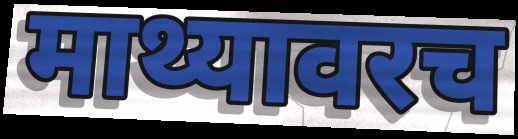
माथ्यावरच